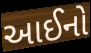
આઈનો